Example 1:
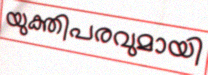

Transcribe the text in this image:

യുക്തിപരവുമായി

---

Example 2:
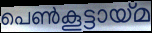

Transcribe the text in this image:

പെൺകൂട്ടായ്മ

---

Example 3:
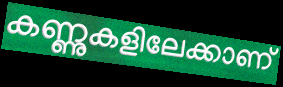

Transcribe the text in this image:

കണ്ണുകളിലേക്കാണ്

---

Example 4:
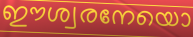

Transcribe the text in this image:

ഈശ്വരനേയൊ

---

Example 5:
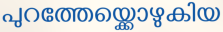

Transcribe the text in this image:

പുറത്തേയ്ക്കൊഴുകിയ